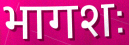
भागशः